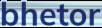
bhetor